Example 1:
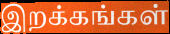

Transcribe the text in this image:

இறக்கங்கள்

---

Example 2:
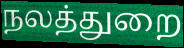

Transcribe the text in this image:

நலத்துறை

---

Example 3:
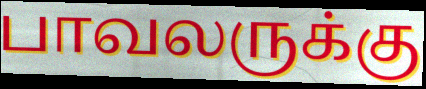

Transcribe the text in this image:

பாவலருக்கு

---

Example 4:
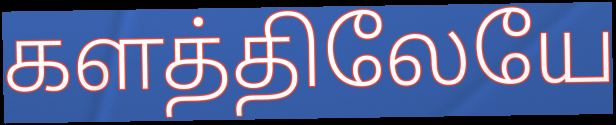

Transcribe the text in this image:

களத்திலேயே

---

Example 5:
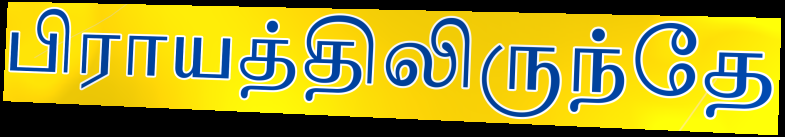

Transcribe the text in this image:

பிராயத்திலிருந்தே